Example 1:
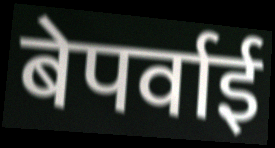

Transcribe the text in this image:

बेपर्वाई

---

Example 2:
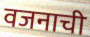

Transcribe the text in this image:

वजनाची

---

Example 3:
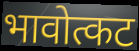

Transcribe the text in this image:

भावोत्कट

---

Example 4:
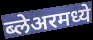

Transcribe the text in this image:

ब्लेअरमध्ये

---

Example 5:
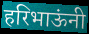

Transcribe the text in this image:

हरिभाऊंनी